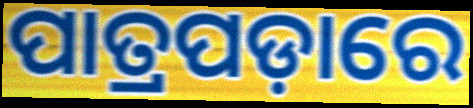
ପାତ୍ରପଡ଼ାରେ